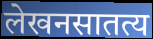
लेखनसातत्य